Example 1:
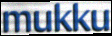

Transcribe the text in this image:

mukku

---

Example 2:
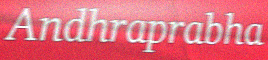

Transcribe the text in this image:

Andhraprabha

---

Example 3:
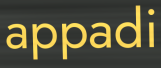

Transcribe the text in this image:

appadi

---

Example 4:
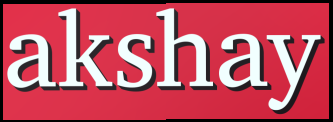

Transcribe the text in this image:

akshay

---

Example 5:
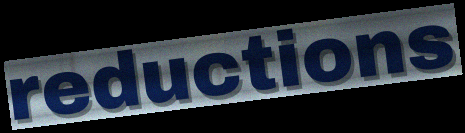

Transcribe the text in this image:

reductions